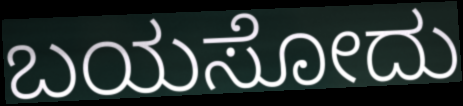
ಬಯಸೋದು